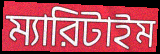
ম্যারিটাইম